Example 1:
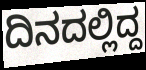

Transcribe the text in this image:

ದಿನದಲ್ಲಿದ್ದ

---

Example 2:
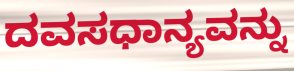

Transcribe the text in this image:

ದವಸಧಾನ್ಯವನ್ನು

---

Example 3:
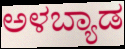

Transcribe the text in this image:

ಅಳಬ್ಯಾಡ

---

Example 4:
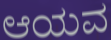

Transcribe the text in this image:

ಆಯವ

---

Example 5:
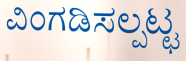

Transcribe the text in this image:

ವಿಂಗಡಿಸಲ್ಪಟ್ಟ